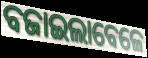
ବଜାଇଲାବେଳେ